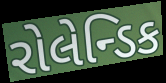
રોલેન્ડિક